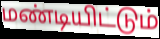
மண்டியிட்டும்